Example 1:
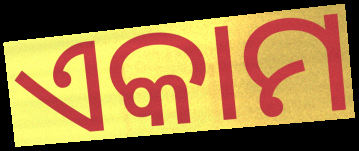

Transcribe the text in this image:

ଏକାମ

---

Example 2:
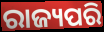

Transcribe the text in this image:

ରାଜ୍ୟପରି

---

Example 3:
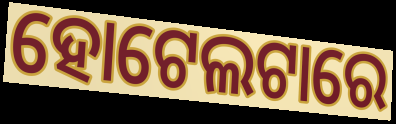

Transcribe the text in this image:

ହୋଟେଲଟାରେ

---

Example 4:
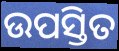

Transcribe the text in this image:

ଉପସ୍ତିତ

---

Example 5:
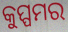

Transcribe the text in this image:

କୁପ୍ପମର